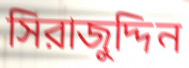
সিরাজুদ্দিন